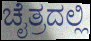
ಚೈತ್ರದಲ್ಲಿ